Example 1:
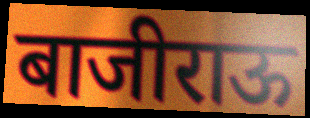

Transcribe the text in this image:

बाजीराऊ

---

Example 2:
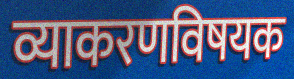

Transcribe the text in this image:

व्याकरणविषयक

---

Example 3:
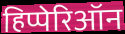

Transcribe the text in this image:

हिप्पेरिऑन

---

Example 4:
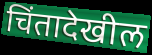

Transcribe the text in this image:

चिंतादेखील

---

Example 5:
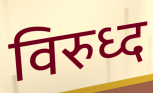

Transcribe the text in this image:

विरुध्द